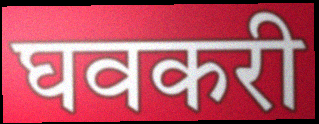
घवकरी